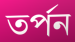
তর্পন